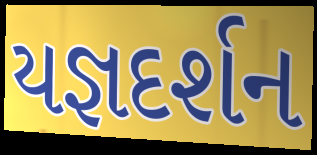
યજ્ઞદર્શન